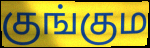
குங்கும